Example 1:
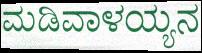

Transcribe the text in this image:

ಮಡಿವಾಳಯ್ಯನ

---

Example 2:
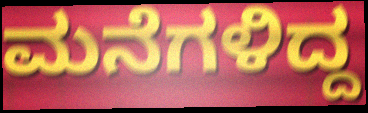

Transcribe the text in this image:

ಮನೆಗಳಿದ್ದ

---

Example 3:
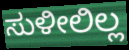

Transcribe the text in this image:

ಸುಳೀಲಿಲ್ಲ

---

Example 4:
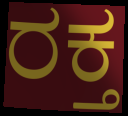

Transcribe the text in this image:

ರಕ್ತ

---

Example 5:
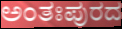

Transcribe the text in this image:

ಅಂತಃಪುರದ